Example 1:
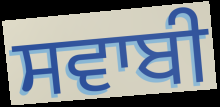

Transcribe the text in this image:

ਸਵਾਬੀ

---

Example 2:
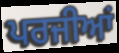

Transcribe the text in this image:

ਪਰਜੀਆਂ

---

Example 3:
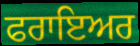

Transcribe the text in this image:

ਫਰਾਇਅਰ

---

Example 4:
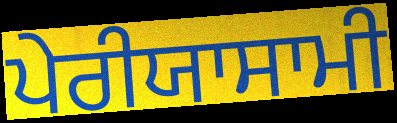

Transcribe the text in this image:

ਪੇਰੀਯਾਸਾਮੀ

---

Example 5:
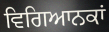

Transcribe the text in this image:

ਵਿਗਿਆਨਕਾਂ